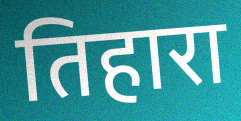
तिहारा